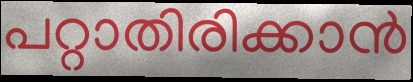
പറ്റാതിരിക്കാൻ